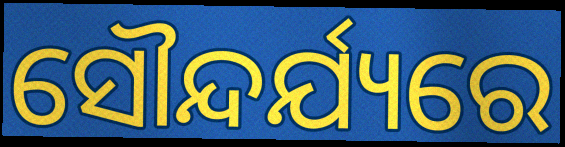
ସୌନ୍ଦର୍ଯ୍ୟରେ